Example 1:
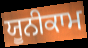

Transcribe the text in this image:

ਯੂਨੀਕਾਮ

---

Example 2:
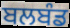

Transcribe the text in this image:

ਬਲਬੰਡ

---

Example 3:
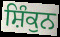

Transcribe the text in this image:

ਸ਼ਿੰਕੁਨ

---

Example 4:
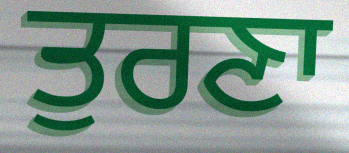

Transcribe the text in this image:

ਤੁਰਣਾ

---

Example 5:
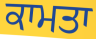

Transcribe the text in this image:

ਕਾਮਤਾ